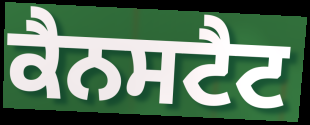
ਕੈਨਸਟੈਟ